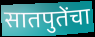
सातपुतेंचा